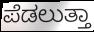
ಪೆಡಲುತ್ತಾ